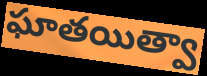
ఘాతయిత్వా